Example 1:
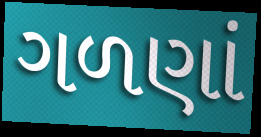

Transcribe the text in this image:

ગળણાં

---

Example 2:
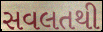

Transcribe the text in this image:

સવલતથી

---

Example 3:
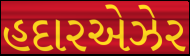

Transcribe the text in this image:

હદારએઝેર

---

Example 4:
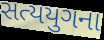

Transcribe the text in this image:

સત્યયુગના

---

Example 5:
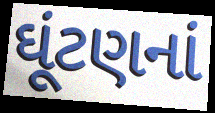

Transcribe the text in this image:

ઘૂંટણનાં